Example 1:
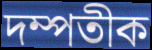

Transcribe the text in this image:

দম্পতীক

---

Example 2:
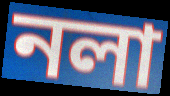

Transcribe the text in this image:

নলা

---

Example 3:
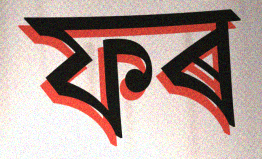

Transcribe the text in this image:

ফৰ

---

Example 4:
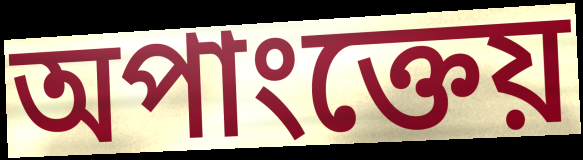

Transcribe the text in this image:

অপাংক্তেয়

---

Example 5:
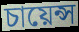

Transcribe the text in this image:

চায়েন্স